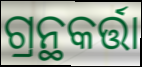
ଗ୍ରନ୍ଥକର୍ତ୍ତା